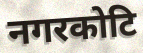
नगरकोटि